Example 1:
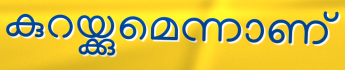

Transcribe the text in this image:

കുറയ്ക്കുമെന്നാണ്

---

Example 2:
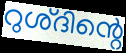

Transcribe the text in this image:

റുശ്ദിന്റെ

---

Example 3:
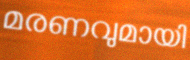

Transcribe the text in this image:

മരണവുമായി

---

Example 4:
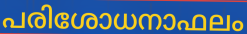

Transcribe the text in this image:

പരിശോധനാഫലം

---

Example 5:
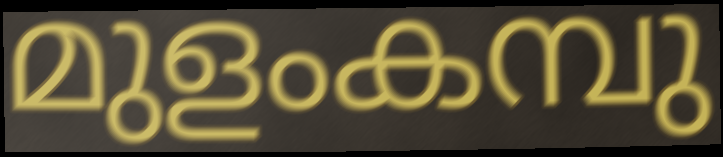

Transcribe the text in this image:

മുളംകമ്പു